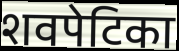
शवपेटिका